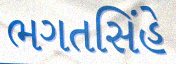
ભગતસિંહે